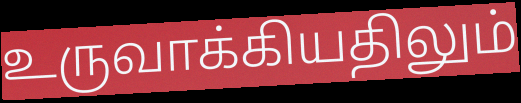
உருவாக்கியதிலும்